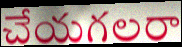
చేయగలరా